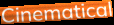
Cinematical